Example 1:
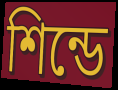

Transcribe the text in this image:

শিন্ডে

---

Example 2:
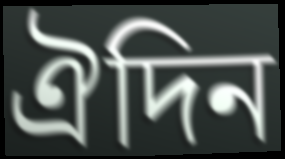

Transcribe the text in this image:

ঐদিন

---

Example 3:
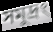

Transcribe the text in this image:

সমুদ্রং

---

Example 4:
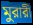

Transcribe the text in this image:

মুরারী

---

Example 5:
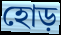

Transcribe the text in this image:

হোড়